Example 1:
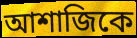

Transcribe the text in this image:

আশাজিকে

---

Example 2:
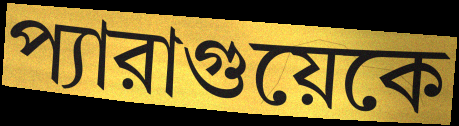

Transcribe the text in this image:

প্যারাগুয়েকে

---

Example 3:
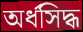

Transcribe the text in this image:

অর্ধসিদ্ধ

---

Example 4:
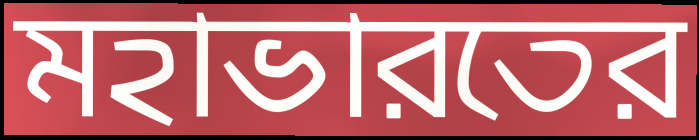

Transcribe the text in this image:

মহাভারতের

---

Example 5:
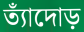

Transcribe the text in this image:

ত্যাঁদোড়